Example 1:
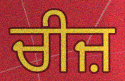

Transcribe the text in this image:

ਚੀਜ਼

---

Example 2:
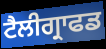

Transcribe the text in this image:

ਟੈਲੀਗ੍ਰਾਫਡ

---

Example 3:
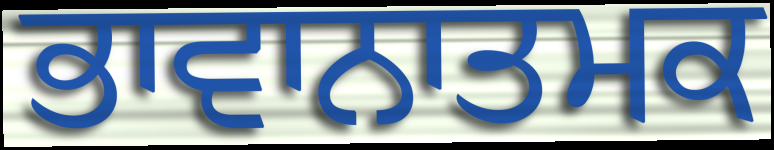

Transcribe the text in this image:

ਭਾਵਾਨਾਤਮਕ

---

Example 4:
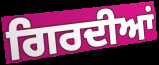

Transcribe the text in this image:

ਗਿਰਦੀਆਂ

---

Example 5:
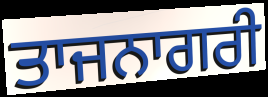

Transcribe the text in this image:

ਤਾਜਨਾਗਰੀ